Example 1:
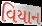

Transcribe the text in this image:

વિયાન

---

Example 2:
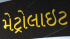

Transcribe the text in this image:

મેટ્રોલાઇટ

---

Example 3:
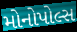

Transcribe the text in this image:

મોનોપોલ્સ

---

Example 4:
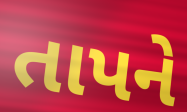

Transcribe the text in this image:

તાપને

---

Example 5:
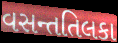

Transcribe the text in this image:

વસન્તતિલકા